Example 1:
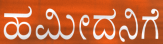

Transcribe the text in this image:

ಹಮೀದನಿಗೆ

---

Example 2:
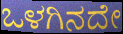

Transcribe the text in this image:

ಒಳಗಿನದೇ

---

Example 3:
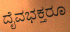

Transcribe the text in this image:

ದೈವಭಕ್ತರೂ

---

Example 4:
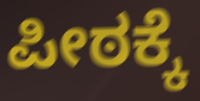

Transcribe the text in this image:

ಪೀಠಕ್ಕೆ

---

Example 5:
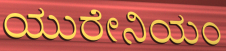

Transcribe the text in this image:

ಯುರೇನಿಯಂ